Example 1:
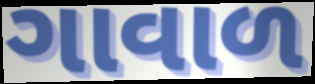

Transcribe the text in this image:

ગાવાળ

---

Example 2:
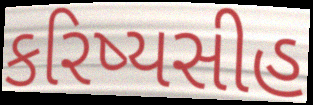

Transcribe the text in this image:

કરિષ્યસીહ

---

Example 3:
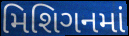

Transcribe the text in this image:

મિશિગનમાં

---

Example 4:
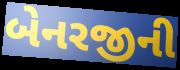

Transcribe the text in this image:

બેનરજીની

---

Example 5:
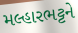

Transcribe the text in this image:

મલ્હારભટ્ટને